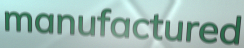
manufactured